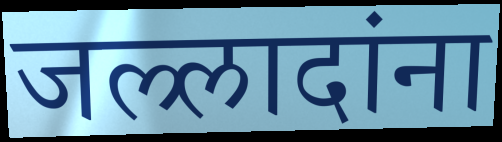
जल्लादांना